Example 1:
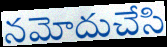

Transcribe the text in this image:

నమోదుచేసి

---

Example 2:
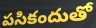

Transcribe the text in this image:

పసికందుతో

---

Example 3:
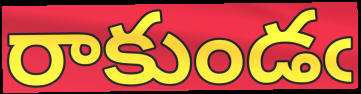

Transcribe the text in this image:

రాకుండఁ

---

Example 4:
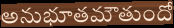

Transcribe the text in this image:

అనుభూతమౌతుందో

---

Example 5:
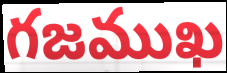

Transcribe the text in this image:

గజముఖ